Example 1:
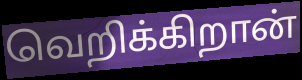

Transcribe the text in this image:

வெறிக்கிறான்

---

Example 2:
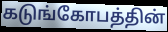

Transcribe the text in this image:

கடுங்கோபத்தின்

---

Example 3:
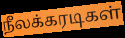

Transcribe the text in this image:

நீலக்கரடிகள்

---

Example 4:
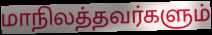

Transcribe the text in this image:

மாநிலத்தவர்களும்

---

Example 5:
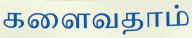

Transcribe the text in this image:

களைவதாம்